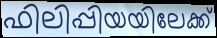
ഫിലിപ്പിയയിലേക്ക്